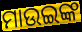
ମାଉଇଙ୍କ